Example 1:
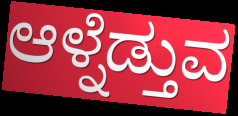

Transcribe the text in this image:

ಆಳ್ನೆಡ್ತುವ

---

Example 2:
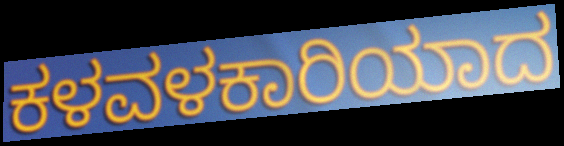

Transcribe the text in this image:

ಕಳವಳಕಾರಿಯಾದ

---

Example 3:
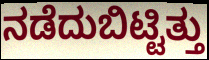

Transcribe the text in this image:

ನಡೆದುಬಿಟ್ಟಿತ್ತು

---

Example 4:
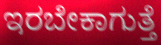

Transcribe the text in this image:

ಇರಬೇಕಾಗುತ್ತೆ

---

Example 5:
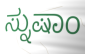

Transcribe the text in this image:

ಸ್ನುಷಾಂ